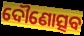
ଦୌଣୋତ୍ସବ